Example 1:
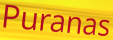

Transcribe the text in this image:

Puranas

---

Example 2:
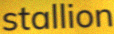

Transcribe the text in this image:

stallion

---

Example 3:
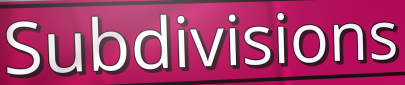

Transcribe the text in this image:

Subdivisions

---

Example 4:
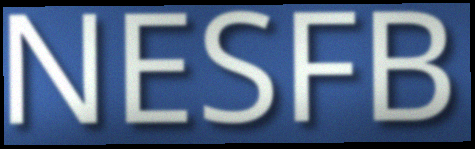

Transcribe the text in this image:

NESFB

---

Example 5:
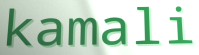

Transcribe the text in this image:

kamali